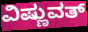
ವಿಷ್ಣುವತ್